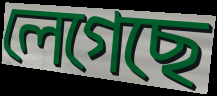
লেগেছে